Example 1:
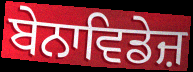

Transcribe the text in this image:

ਬੇਨਾਵਿਡੇਜ਼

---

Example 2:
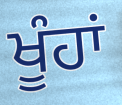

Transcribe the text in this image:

ਖੂੰਹਾਂ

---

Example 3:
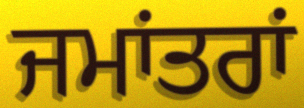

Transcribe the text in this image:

ਜਮਾਂਤਰਾਂ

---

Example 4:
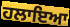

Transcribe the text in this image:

ਹਲਾਇਆ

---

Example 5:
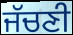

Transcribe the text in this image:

ਜੱਚਣੀ